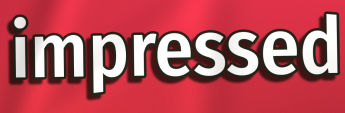
impressed